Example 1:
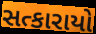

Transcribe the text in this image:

સત્કારાયો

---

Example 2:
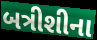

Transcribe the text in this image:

બત્રીશીના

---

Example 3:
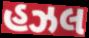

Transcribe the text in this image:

હઝલ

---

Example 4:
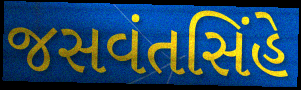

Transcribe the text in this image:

જસવંતસિંહે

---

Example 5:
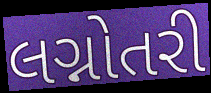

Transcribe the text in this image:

લગ્નોતરી